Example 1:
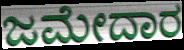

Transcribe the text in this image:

ಜಮೇದಾರ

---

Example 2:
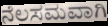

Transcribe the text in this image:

ನೆಲಸಮವಾಗಿ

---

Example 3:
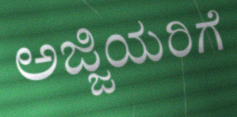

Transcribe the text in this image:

ಅಜ್ಜಿಯರಿಗೆ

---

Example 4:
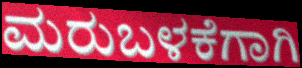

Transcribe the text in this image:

ಮರುಬಳಕೆಗಾಗಿ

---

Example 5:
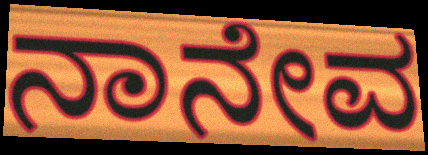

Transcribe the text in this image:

ನಾನೇವ